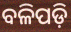
ବଳିପଡ଼ି